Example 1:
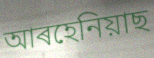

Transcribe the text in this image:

আৰহেনিয়াছ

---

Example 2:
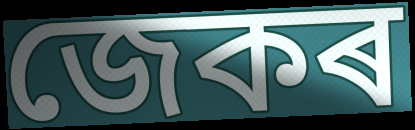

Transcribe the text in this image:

জেকৰ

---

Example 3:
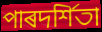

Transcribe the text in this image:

পাৰদৰ্শিতা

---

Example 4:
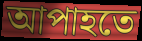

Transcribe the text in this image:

আপাহতে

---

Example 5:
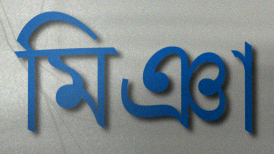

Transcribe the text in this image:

মিঞা